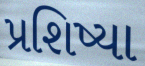
પ્રશિષ્યા